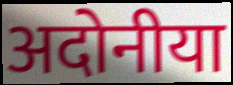
अदोनीया